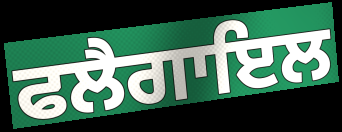
ਫਲੈਗਾਇਲ